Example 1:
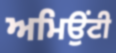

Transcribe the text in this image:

ਅਮਿਉਂਟੀ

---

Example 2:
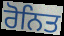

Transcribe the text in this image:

ਰੋਨਿਤ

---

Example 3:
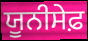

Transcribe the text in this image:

ਯੂਨੀਸੇਫ਼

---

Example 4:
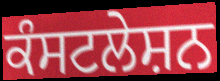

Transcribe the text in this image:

ਕੰਸਟਲੇਸ਼ਨ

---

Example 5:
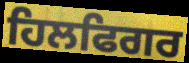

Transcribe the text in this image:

ਹਿਲਫਿਗਰ